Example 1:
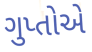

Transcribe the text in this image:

ગુપ્તોએ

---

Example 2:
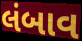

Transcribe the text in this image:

લંબાવ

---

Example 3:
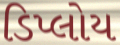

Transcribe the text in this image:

ડિપ્લોય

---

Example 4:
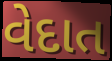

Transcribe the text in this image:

વેદાત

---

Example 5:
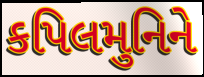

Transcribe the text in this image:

કપિલમુનિને